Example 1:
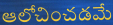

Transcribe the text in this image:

ఆలోచించడమే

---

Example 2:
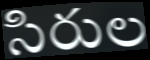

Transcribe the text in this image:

సిరుల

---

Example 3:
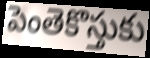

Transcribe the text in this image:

పెంతెకొస్తుకు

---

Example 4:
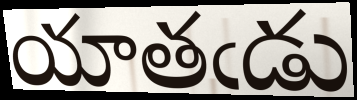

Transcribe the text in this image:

యాతఁడు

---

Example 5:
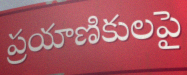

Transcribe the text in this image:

ప్రయాణికులపై